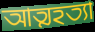
আত্মহত্যা